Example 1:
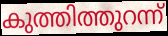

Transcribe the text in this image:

കുത്തിത്തുറന്ന്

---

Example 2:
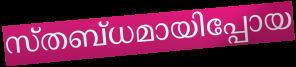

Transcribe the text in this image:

സ്തബ്ധമായിപ്പോയ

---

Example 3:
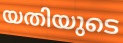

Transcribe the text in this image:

യതിയുടെ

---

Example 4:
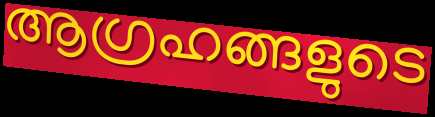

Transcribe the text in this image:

ആഗ്രഹങ്ങളുടെ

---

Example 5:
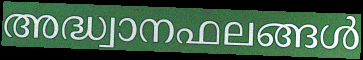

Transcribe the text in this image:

അദ്ധ്വാനഫലങ്ങൾ